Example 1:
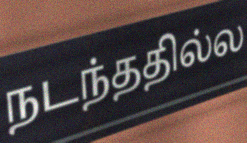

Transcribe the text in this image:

நடந்ததில்ல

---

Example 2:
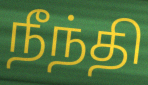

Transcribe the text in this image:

நீந்தி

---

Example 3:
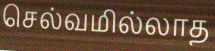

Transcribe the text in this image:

செல்வமில்லாத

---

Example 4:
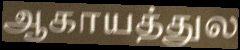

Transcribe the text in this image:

ஆகாயத்துல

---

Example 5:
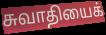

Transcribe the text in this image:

சுவாதியைக்